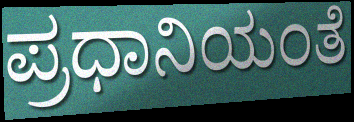
ಪ್ರಧಾನಿಯಂತೆ